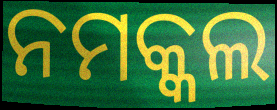
ନମକ୍କଲ